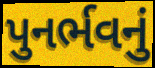
પુનર્ભવનું